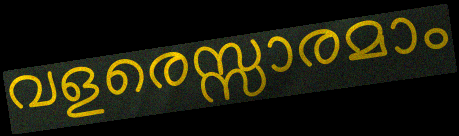
വളരെസ്സാരമാം